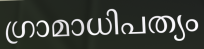
ഗ്രാമാധിപത്യം